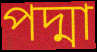
পদ্মা